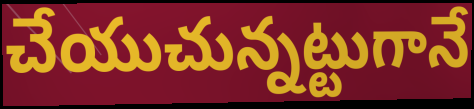
చేయుచున్నట్టుగానే